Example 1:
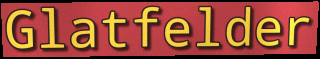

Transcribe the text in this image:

Glatfelder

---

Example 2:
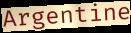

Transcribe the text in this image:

Argentine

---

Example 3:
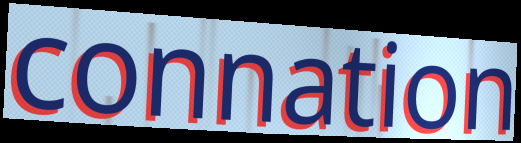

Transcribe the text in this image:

connation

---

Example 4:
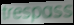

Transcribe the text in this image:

trespass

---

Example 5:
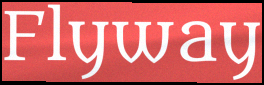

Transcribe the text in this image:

Flyway